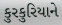
કુરકુરિયાને